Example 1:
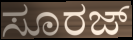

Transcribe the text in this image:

ಸೂರಜ್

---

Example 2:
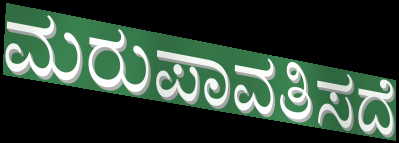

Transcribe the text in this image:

ಮರುಪಾವತಿಸದೆ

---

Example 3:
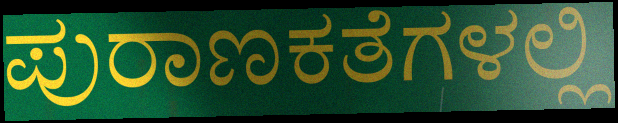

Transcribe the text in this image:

ಪುರಾಣಕತೆಗಳಲ್ಲಿ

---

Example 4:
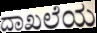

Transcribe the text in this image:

ದಾಖಲೆಯ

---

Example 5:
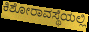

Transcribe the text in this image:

ಕಿಶೋರಾವಸ್ಥೆಯಲ್ಲಿ